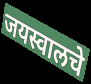
जयस्वालचे